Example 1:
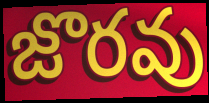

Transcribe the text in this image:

జొరవు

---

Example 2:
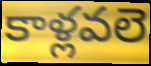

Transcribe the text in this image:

కాళ్లవలె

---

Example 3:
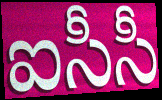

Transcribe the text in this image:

ఐసీసీ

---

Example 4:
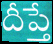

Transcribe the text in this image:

దీప్తే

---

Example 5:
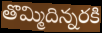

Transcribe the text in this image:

తొమ్మిదిన్నరకి